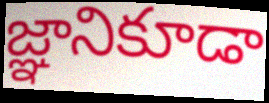
జ్ఞానికూడా